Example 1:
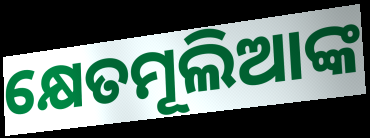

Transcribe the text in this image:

କ୍ଷେତମୂଲିଆଙ୍କ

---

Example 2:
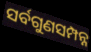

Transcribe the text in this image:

ସର୍ବଗୁଣସମ୍ପନ୍ନ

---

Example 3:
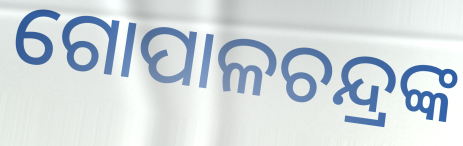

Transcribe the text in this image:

ଗୋପାଳଚନ୍ଦ୍ରଙ୍କ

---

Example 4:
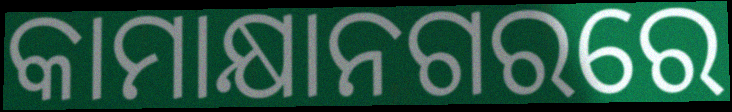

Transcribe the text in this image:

କାମାକ୍ଷାନଗରରେ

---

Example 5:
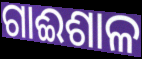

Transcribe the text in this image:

ଗାଈଶାଳ